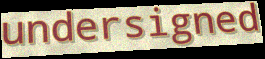
undersigned